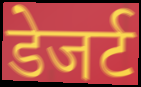
डेजर्ट